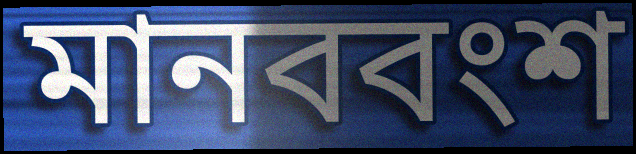
মানববংশ